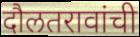
दौलतरावांची